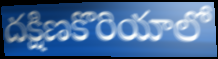
దక్షిణకొరియాలో